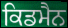
ਕਿਡਮੈਨ